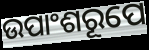
ଉପାଂଶରୂପେ